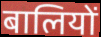
बालियों